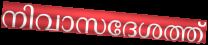
നിവാസദേശത്ത്